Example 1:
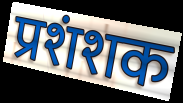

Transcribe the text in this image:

प्रशंशक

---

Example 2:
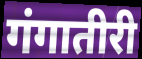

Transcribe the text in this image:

गंगातीरी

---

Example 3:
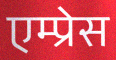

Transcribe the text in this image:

एम्प्रेस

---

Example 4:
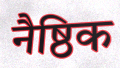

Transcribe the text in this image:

नैष्ठिक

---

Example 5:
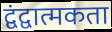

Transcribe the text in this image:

द्वंद्वात्मकता